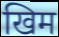
खिम